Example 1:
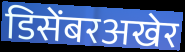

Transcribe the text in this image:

डिसेंबरअखेर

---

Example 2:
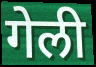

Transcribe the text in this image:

गेली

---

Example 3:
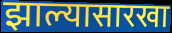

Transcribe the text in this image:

झाल्यासारखा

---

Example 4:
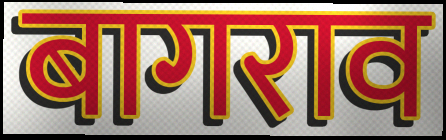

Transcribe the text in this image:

बागराव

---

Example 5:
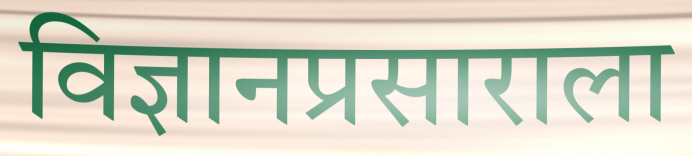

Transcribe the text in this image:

विज्ञानप्रसाराला